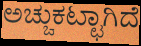
ಅಚ್ಚುಕಟ್ಟಾಗಿದೆ